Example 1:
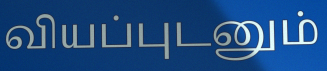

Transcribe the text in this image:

வியப்புடனும்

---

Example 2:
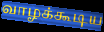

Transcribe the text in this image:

வாழக்கூடிய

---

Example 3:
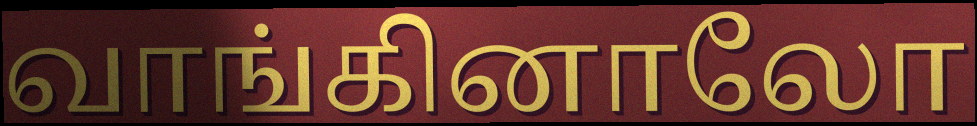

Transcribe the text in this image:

வாங்கினாலோ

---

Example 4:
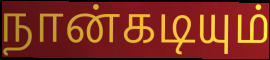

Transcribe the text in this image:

நான்கடியும்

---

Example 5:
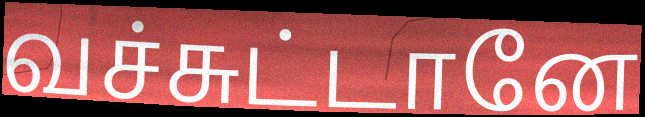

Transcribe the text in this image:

வச்சுட்டானே